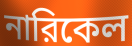
নারিকেল